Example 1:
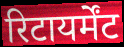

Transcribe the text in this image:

रिटायर्मेंट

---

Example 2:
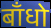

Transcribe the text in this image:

बाँधो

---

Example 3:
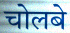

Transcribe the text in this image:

चोलबे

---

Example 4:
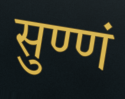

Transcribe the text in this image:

सुण्णं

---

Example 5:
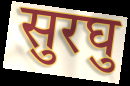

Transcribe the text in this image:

सुरघु